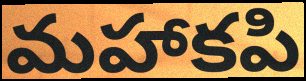
మహాకపి